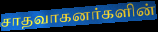
சாதவாகனர்களின்